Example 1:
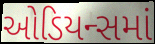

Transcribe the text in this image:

ઓડિયન્સમાં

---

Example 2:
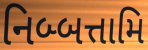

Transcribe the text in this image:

નિબ્બત્તામિ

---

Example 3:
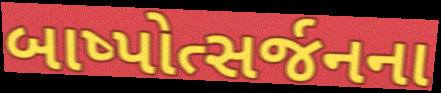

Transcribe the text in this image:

બાષ્પોત્સર્જનના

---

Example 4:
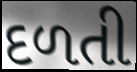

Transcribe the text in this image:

દળતી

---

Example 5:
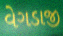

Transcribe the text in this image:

વેગડાજી